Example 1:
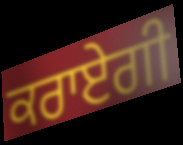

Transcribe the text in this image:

ਕਰਾਏਗੀ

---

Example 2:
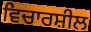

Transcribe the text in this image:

ਵਿਚਾਰਸ਼ੀਲ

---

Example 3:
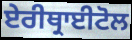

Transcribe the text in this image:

ਏਰੀਥ੍ਰਾਈਟੋਲ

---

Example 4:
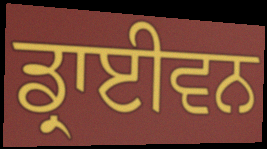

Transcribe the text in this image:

ਡ੍ਰਾਈਵਨ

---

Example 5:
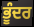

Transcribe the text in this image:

ਭੂੰਦਰ